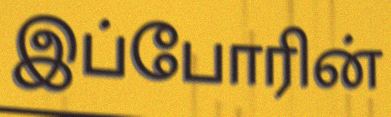
இப்போரின்